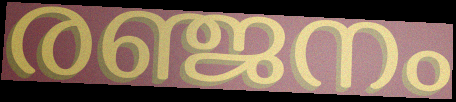
രഞ്ജനം